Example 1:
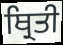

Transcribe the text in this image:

ਥ੍ਰਿਤੀ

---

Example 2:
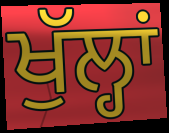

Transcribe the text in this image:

ਖੁੱਲ੍ਹਾਂ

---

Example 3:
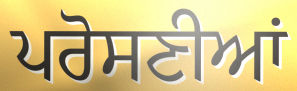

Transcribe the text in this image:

ਪਰੋਸਣੀਆਂ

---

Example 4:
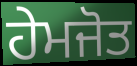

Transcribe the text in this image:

ਹੇਮਜੋਤ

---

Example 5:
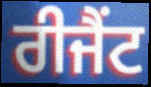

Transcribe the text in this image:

ਰੀਜੈਂਟ